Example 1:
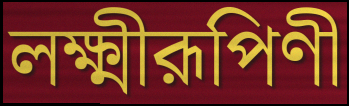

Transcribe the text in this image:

লক্ষ্মীরূপিণী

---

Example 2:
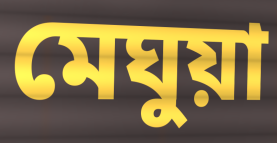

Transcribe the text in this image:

মেঘুয়া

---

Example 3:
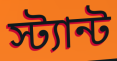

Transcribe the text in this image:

স্ট্যান্ট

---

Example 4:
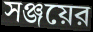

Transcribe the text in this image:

সঞ্জয়ের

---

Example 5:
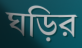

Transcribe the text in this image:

ঘড়ির